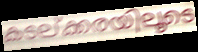
കടല്ക്കരയിലൂടെ